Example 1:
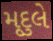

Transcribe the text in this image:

મૃદુલે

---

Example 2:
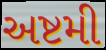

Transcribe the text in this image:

અષ્ટમી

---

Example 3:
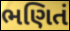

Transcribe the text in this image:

ભણિતં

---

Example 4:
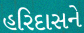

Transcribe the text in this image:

હરિદાસને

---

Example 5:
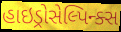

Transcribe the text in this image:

હાઇડ્રોસેલ્પિન્ક્સ